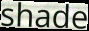
shade